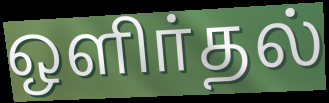
ஒளிர்தல்